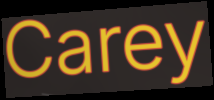
Carey